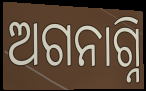
ଅଗନାଗ୍ନି